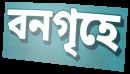
বনগৃহে